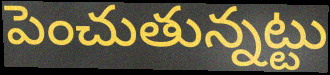
పెంచుతున్నట్టు